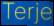
Terje